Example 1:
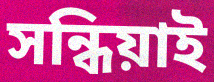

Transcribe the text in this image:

সন্ধিয়াই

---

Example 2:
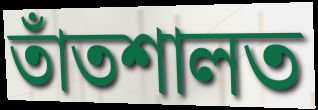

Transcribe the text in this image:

তাঁতশালত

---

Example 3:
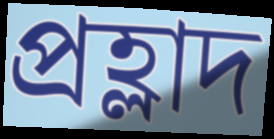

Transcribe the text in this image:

প্ৰহ্লাদ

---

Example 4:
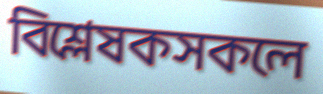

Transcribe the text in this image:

বিশ্লেষকসকলে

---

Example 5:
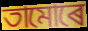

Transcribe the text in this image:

তামোৰে